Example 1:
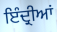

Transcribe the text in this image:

ਇੰਦ੍ਰੀਆਂ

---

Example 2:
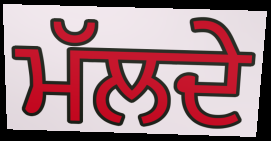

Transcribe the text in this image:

ਮੱਲਦੇ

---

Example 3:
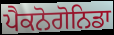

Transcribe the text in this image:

ਪੈਕਨੋਗੋਨਿਡਾ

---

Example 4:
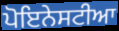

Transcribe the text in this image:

ਪੋਇਨੇਸਟੀਆ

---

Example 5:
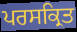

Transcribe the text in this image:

ਪਰਸਕ੍ਰਿਤ